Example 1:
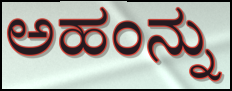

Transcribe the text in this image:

ಅಹಂನ್ನು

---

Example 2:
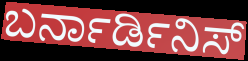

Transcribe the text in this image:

ಬರ್ನಾರ್ಡಿನಿಸ್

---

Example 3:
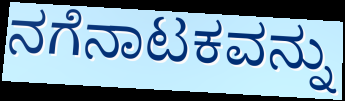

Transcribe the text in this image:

ನಗೆನಾಟಕವನ್ನು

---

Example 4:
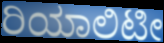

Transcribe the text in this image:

ರಿಯಾಲಿಟೀ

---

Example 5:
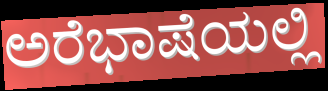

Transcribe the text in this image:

ಅರೆಭಾಷೆಯಲ್ಲಿ